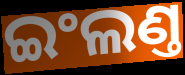
ଇଂଲଣ୍ତ